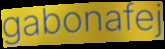
gabonafej